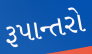
રૂપાન્તરો